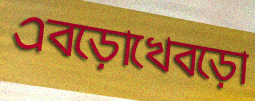
এবড়োখেবড়ো